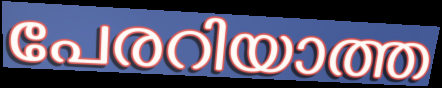
പേരറിയാത്ത